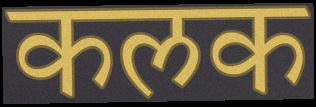
कलक